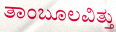
ತಾಂಬೂಲವಿತ್ತು